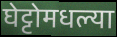
घेट्टोमधल्या